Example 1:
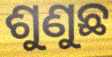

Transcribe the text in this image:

ଶୁଣୁଛ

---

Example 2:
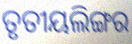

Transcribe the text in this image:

ତୃତୀୟଲିଙ୍ଗର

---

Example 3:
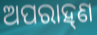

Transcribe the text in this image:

ଅପରାହ୍‍ଣ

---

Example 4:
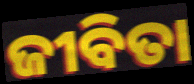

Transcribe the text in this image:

ଜୀବିତା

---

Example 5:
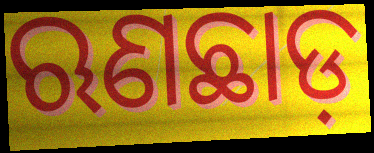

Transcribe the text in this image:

ଋଣଛାଡ଼